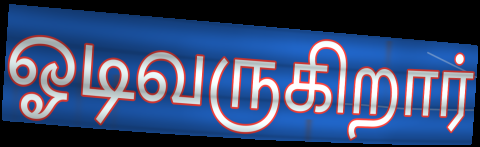
ஓடிவருகிறார்